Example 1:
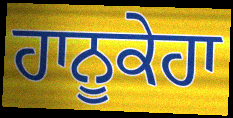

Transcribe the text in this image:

ਹਾਨੂਕੇਹਾ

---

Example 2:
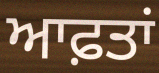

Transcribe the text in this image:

ਆਫ਼ਤਾਂ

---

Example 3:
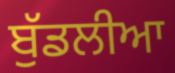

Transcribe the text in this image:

ਬੁੱਡਲੀਆ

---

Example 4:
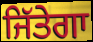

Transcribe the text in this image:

ਜਿੱਤੇਗਾ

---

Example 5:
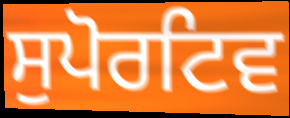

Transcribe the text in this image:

ਸੁਪੋਰਟਿਵ